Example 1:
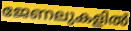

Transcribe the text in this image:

ജേണലുകളിൽ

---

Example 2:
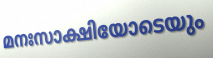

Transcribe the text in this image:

മനഃസാക്ഷിയോടെയും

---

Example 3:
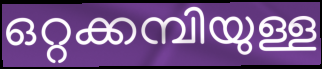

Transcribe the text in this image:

ഒറ്റക്കമ്പിയുള്ള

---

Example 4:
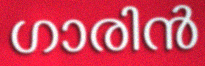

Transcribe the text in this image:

ഗാരിൻ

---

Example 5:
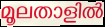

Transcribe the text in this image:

മൂലതാളിൽ